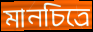
মানচিত্রে